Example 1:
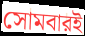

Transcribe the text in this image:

সোমবারই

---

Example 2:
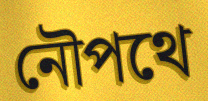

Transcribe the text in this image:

নৌপথে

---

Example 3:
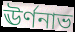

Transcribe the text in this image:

ঊর্ণনাভ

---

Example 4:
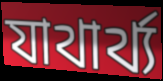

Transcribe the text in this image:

যাথার্থ্য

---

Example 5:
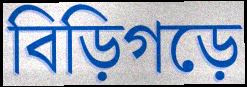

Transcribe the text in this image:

বিড়িগড়ে